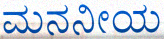
ಮನನೀಯ